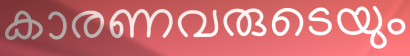
കാരണവരുടെയും